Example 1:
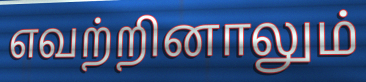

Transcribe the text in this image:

எவற்றினாலும்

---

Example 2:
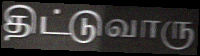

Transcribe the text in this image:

திட்டுவாரு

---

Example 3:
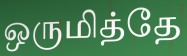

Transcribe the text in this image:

ஒருமித்தே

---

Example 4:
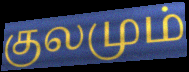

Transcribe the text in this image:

குலமும்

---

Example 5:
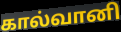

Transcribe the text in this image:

கால்வானி